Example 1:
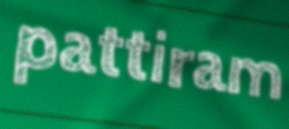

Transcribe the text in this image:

pattiram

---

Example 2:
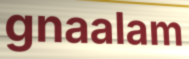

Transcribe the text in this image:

gnaalam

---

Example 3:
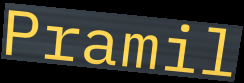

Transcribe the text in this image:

Pramil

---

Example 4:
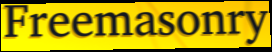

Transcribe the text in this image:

Freemasonry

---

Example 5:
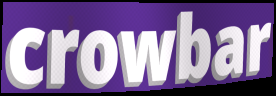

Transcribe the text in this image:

crowbar